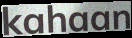
kahaan